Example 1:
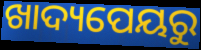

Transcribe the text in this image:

ଖାଦ୍ୟପେୟରୁ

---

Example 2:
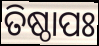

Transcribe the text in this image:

ତିଷ୍ଠାପଃ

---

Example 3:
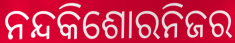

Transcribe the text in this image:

ନନ୍ଦକିଶୋରନିଜର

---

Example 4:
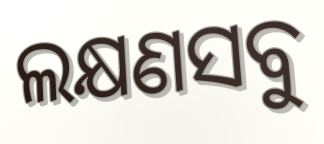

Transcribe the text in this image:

ଲକ୍ଷଣସବୁ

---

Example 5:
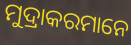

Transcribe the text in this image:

ମୁଦ୍ରାକରମାନେ